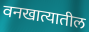
वनखात्यातील